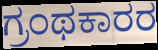
ಗ್ರಂಥಕಾರರ